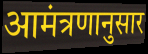
आमंत्रणानुसार